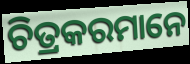
ଚିତ୍ରକରମାନେ